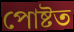
পোষ্টত